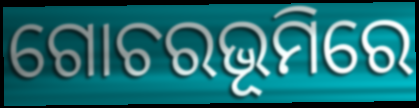
ଗୋଚରଭୂମିରେ